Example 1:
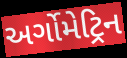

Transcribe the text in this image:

અર્ગોમેટ્રિન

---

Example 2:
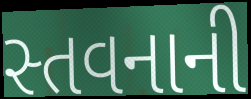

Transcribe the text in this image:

સ્તવનાની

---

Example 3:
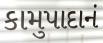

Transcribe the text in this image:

કામુપાદાનં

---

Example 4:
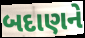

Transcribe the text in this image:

બદાણને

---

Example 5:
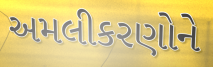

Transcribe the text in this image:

અમલીકરણોને